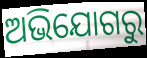
ଅଭିଯୋଗରୁ